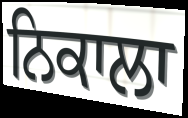
ਨਿਕਾਲਾ